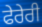
ਫੇਰੇਰੀ